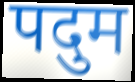
पदुम